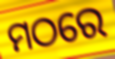
ମଠରେ